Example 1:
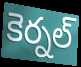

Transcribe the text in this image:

కెర్నల్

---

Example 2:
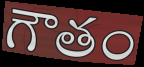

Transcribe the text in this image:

గౌతం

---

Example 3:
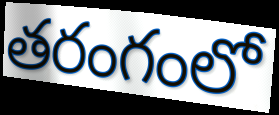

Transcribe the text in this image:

తరంగంలో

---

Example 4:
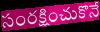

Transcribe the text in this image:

సంరక్షించుకొనే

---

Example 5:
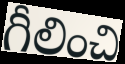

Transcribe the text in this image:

గీలించి